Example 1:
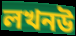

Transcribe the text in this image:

লখনউ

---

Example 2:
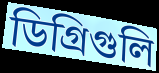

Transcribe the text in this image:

ডিগ্রিগুলি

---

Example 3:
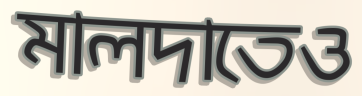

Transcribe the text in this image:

মালদাতেও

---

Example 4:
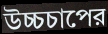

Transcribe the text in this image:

উচ্চচাপের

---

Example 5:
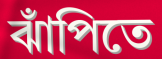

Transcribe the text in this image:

ঝাঁপিতে